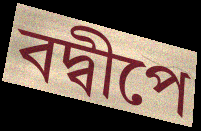
বদ্বীপে